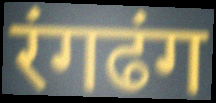
रंगढंग